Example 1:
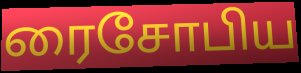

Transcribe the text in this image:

ரைசோபிய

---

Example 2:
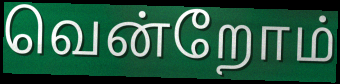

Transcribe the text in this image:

வென்றோம்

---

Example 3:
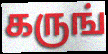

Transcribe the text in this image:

கருங்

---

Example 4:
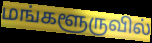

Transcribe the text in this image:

மங்களூருவில்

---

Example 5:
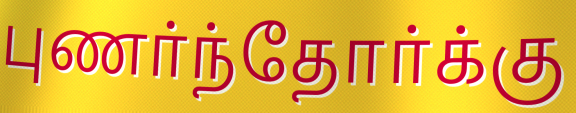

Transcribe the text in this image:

புணர்ந்தோர்க்கு